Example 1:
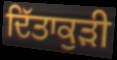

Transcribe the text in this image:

ਦਿੱਤਾਕੁੜੀ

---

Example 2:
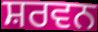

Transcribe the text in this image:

ਸ਼ਰਵਨ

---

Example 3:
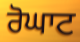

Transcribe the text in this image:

ਰੋਘਾਟ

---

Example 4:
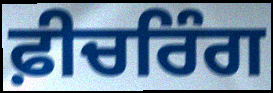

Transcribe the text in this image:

ਫ਼ੀਚਰਿੰਗ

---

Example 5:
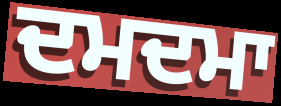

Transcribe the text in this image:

ਦਮਦਮਾ